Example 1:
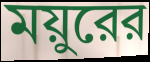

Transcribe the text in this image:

ময়ুরের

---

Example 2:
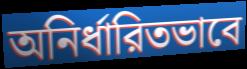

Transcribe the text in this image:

অনির্ধারিতভাবে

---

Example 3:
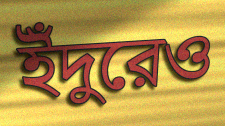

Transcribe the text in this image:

ইঁদুরেও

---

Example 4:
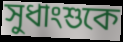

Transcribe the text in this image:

সুধাংশুকে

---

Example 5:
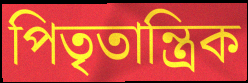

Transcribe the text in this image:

পিতৃতান্ত্রিক